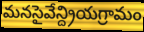
మనసైవేన్ద్రియగ్రామం